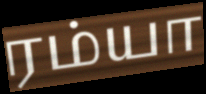
ரம்யா